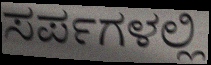
ಸರ್ಪಗಳಲ್ಲಿ